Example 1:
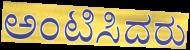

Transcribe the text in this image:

ಅಂಟಿಸಿದರು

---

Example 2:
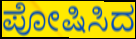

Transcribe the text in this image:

ಪೋಷಿಸಿದ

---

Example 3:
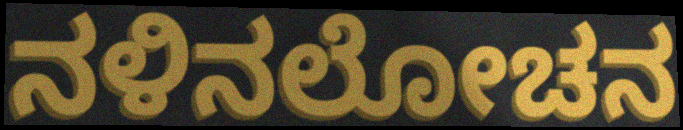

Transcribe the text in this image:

ನಳಿನಲೋಚನ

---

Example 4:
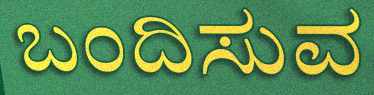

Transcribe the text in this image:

ಬಂದಿಸುವ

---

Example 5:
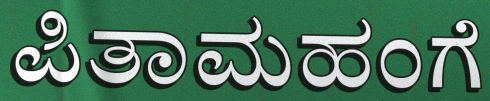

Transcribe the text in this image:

ಪಿತಾಮಹಂಗೆ